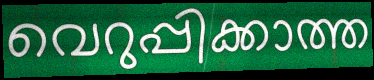
വെറുപ്പിക്കാത്ത